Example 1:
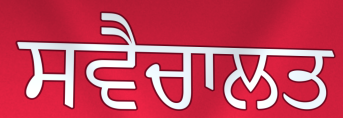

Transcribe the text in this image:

ਸਵੈਚਾਲਤ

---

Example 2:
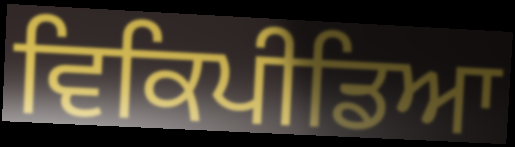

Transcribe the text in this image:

ਵਿਕਿਪੀਡਿਆ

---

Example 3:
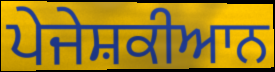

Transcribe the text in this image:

ਪੇਜੇਸ਼ਕੀਆਨ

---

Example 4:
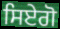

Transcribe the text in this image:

ਸਿਏਗੋ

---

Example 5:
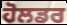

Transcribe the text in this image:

ਹੋਲਡਰ